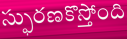
స్ఫురణకొస్తోంది